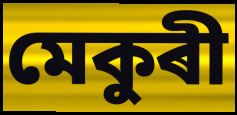
মেকুৰী